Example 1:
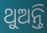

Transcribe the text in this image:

ଥୁଅନ୍ତି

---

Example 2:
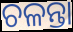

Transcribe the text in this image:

ଚଳନ୍ତା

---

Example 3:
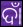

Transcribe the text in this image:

ଦାଁ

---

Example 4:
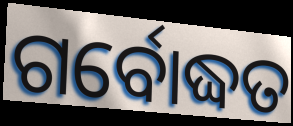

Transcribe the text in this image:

ଗର୍ବୋଦ୍ଧତ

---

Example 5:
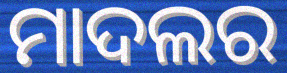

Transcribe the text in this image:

ମାଦଲର